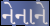
નેનાને